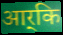
आर्कि